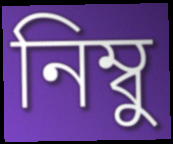
নিম্বু